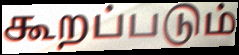
கூறப்படும்